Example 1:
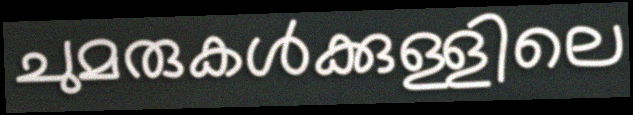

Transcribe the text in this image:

ചുമരുകൾക്കുള്ളിലെ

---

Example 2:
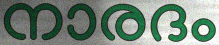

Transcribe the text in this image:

നാരദം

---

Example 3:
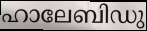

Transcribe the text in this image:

ഹാലേബിഡു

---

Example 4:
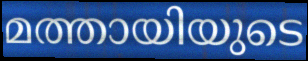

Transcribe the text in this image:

മത്തായിയുടെ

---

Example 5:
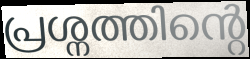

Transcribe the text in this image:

പ്രശ്നത്തിന്റെ